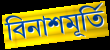
বিনাশমূর্তি